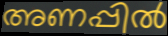
അണപ്പിൽ